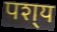
पश्य